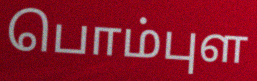
பொம்புள